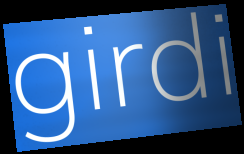
girdi